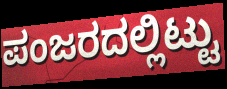
ಪಂಜರದಲ್ಲಿಟ್ಟು